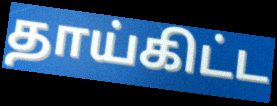
தாய்கிட்ட